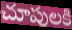
చూపులకి